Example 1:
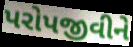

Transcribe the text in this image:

પરોપજીવીને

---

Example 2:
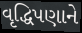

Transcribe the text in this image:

વૃદ્ધિપણાને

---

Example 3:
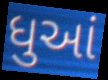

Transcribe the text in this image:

ધુઆં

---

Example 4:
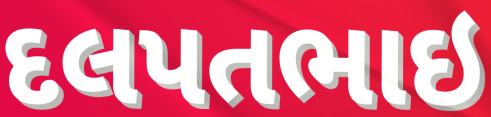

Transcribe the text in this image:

દલપતભાઇ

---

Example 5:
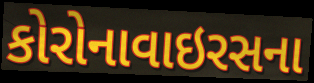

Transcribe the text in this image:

કોરોનાવાઇરસના